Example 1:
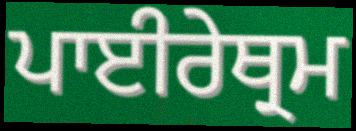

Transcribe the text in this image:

ਪਾਈਰੇਥ੍ਰਮ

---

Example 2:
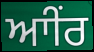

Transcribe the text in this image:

ਆੀਂਰ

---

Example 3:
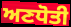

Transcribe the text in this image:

ਅਣਧੋਤੀ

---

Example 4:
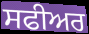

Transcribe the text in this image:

ਸਫੀਅਰ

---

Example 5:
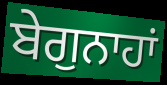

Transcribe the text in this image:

ਬੇਗੁਨਾਹਾਂ